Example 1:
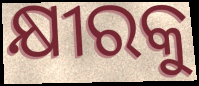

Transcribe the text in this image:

କ୍ଷୀରକୁ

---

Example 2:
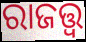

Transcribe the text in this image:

ରାଜତ୍ତ୍ୱ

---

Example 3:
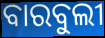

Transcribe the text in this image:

ବାରବୁଲୀ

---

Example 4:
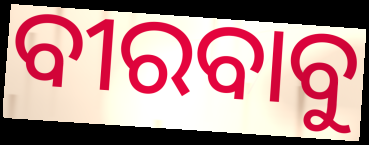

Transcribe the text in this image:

ବୀରବାବୁ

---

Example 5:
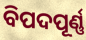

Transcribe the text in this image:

ବିପଦପୂର୍ଣ୍ଣ